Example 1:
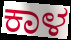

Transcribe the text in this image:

ಕಾಳ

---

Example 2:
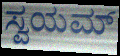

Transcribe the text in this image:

ಸ್ವಯಮ್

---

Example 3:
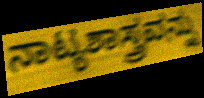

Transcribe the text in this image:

ನಾಟ್ಯಶಾಸ್ತ್ರವನ್ನು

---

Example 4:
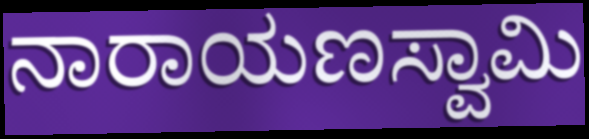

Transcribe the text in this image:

ನಾರಾಯಣಸ್ವಾಮಿ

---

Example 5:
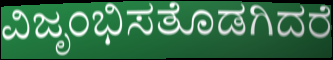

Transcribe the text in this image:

ವಿಜೃಂಭಿಸತೊಡಗಿದರೆ